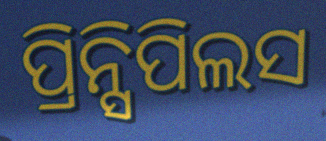
ପ୍ରିନ୍ସିପିଲସ